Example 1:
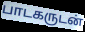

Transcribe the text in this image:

பாடகருடன்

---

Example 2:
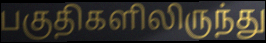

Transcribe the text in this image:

பகுதிகளிலிருந்து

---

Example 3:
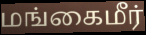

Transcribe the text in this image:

மங்கைமீர்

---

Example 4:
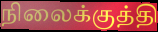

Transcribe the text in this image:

நிலைக்குத்தி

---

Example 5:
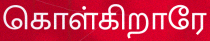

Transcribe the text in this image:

கொள்கிறாரே